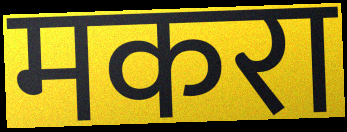
मकरा